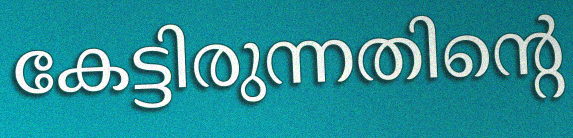
കേട്ടിരുന്നതിന്റെ